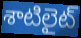
శాటిలైట్